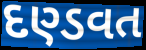
દણ્ડવત